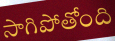
సాగిపోతోంది